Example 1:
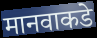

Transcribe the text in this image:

मानवाकडे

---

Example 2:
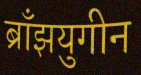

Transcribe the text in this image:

ब्राँझयुगीन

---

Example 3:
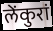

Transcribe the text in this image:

लेंकुरां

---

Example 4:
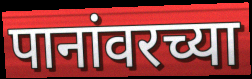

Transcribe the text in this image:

पानांवरच्या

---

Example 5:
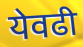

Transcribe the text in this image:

येवढी